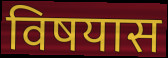
विषयास